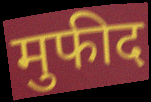
मुफीद